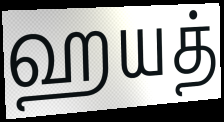
ஹயத்